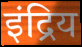
इंद्रिय